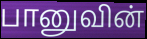
பானுவின்